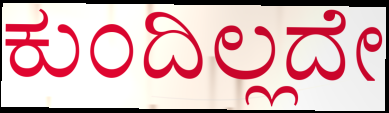
ಕುಂದಿಲ್ಲದೇ